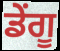
ਡੇਂਗੂ